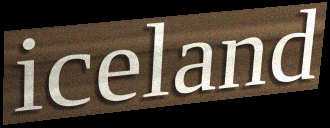
iceland